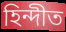
হিন্দীত